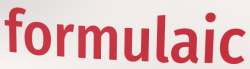
formulaic